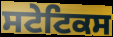
ਸਟੇਟਿਕਸ